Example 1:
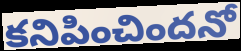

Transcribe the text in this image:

కనిపించిందనో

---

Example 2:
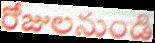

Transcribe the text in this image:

రోజులనుండి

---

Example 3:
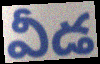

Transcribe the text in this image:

వీడ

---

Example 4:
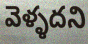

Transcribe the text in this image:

వెళ్ళదని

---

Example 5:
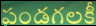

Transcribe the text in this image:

పండగలకీ